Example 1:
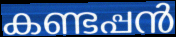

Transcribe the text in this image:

കണ്ടപ്പൻ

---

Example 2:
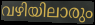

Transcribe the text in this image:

വഴിയിലാരും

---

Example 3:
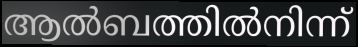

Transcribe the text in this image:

ആൽബത്തിൽനിന്ന്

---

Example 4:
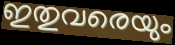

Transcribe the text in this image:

ഇതുവരെയും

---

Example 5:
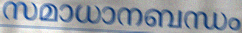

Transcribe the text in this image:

സമാധാനബന്ധം